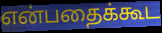
என்பதைக்கூட